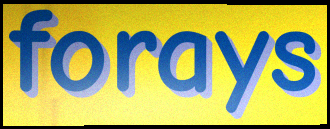
forays